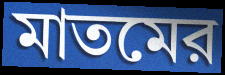
মাতমের